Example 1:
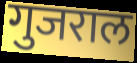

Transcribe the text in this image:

गुजराल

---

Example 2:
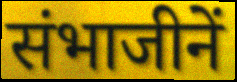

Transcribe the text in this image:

संभाजीनें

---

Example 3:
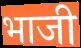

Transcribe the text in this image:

भाजी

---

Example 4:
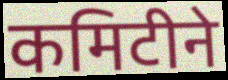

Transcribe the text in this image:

कमिटीने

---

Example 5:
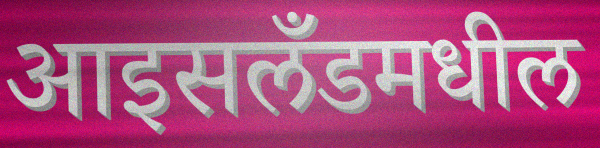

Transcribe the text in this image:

आइसलँडमधील